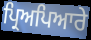
ਪ੍ਰਿਅਪਿਆਰੇ